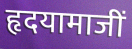
हृदयामाजीं